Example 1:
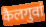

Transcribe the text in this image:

कैलगुवां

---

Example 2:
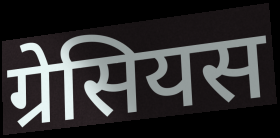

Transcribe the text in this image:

ग्रेसियस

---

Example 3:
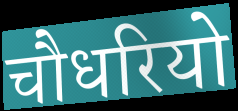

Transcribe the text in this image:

चौधरियो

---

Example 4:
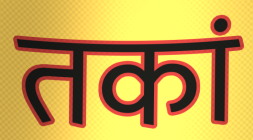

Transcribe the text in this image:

तकां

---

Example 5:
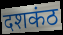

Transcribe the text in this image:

दशकंठ